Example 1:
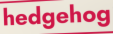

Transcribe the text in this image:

hedgehog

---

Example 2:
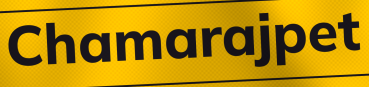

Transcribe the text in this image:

Chamarajpet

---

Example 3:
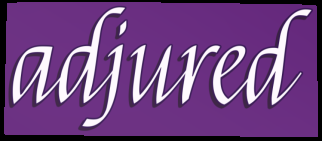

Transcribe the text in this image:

adjured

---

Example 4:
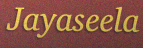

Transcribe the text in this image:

Jayaseela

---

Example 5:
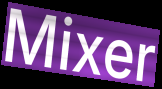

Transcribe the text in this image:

Mixer